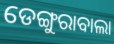
ଡେଙ୍ଗୁରାବାଲା